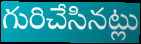
గురిచేసినట్లు